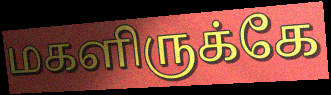
மகளிருக்கே